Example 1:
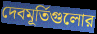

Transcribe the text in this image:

দেবমূর্তিগুলোর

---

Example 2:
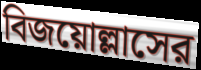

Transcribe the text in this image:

বিজয়োল্লাসের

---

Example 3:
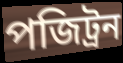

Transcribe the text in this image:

পজিট্রন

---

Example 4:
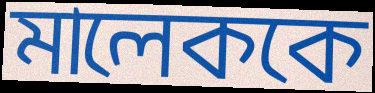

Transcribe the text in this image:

মালেককে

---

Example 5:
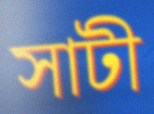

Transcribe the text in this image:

সাটী